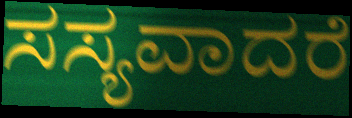
ಸಸ್ಯವಾದರೆ